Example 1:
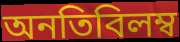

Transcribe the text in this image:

অনতিবিলম্ব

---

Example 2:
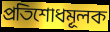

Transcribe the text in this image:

প্রতিশোধমূলক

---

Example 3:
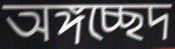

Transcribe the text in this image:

অঙ্গচ্ছেদ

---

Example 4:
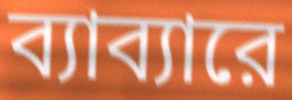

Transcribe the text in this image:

ব্যাব্যারে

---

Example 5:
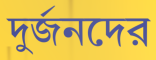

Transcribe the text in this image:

দুর্জনদের